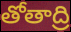
తోతాద్రి